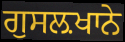
ਗੁਸਲ਼ਖਾਨੇ